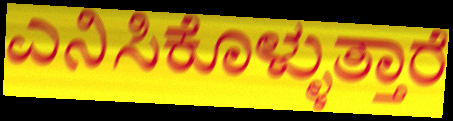
ಎನಿಸಿಕೊಳ್ಳುತ್ತಾರೆ